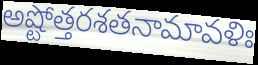
అష్టోత్తరశతనామావళిః